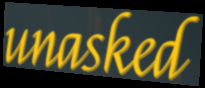
unasked